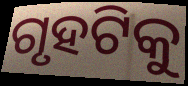
ଗୃହଟିକୁ